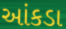
આંકડા